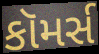
કૉમર્સ